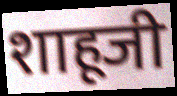
शाहूजी